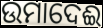
ଉମାଦେଈ